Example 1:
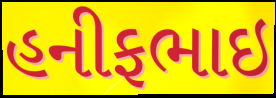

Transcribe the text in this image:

હનીફભાઇ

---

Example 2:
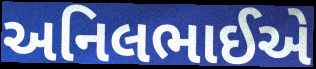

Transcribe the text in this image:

અનિલભાઈએ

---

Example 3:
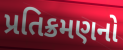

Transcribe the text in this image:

પ્રતિક્રમણનો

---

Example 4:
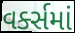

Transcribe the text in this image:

વર્ક્સમાં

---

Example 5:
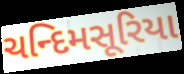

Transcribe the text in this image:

ચન્દિમસૂરિયા